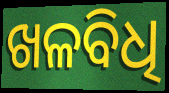
ଖଳବିଧି